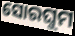
ସୋରଘୁମ